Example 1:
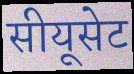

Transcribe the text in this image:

सीयूसेट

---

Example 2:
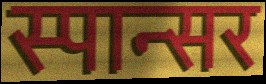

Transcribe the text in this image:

स्पान्सर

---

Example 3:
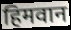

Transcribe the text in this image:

हिमवान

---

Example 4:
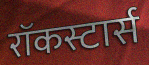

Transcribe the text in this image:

रॉकस्टार्स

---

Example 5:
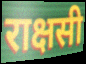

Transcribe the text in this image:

राक्षसी